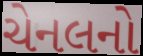
ચેનલનો